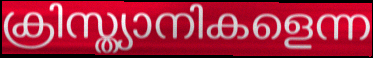
ക്രിസ്ത്യാനികളെന്ന